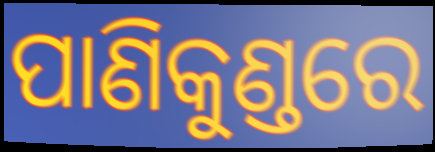
ପାଣିକୁଣ୍ଡରେ